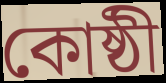
কোষ্ঠী